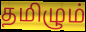
தமிழும்